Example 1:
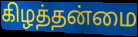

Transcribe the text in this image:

கிழத்தன்மை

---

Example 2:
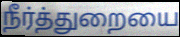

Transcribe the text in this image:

நீர்த்துறையை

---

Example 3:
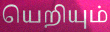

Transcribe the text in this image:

யெறியும்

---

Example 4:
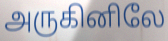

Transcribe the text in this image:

அருகினிலே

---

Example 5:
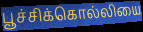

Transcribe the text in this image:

பூச்சிக்கொல்லியை